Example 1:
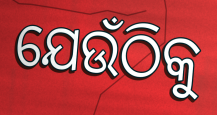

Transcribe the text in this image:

ଯେଉଁଠିକୁ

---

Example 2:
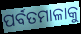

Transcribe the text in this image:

ପର୍ବତମାଳାକୁ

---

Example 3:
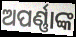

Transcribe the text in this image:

ଅପର୍ଣ୍ଣାଙ୍କ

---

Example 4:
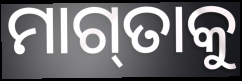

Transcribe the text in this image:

ମାଗ୍‌ତାକୁ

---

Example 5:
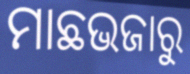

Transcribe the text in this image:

ମାଛଭଜାରୁ